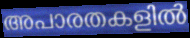
അപാരതകളിൽ